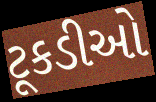
ટૂકડીઓ